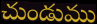
చుండుము